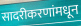
सादरीकरणांमधून